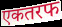
एकतरफ